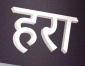
हरा